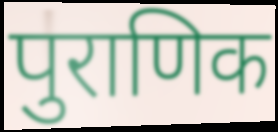
पुराणिक